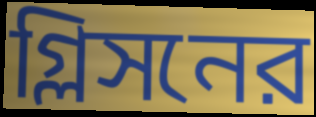
গ্লিসনের